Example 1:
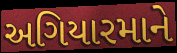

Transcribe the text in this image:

અગિયારમાને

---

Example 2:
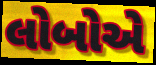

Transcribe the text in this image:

લોબોએ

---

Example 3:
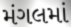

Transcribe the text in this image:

મંગલમાં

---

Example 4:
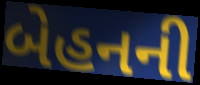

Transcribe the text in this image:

બેહનની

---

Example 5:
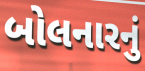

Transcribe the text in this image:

બોલનારનું